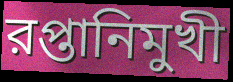
রপ্তানিমুখী